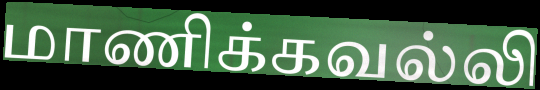
மாணிக்கவல்லி